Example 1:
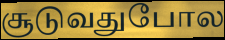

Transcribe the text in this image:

சூடுவதுபோல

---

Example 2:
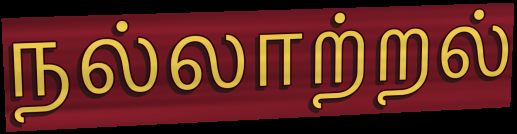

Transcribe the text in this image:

நல்லாற்றல்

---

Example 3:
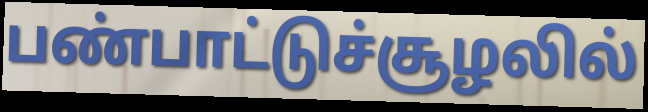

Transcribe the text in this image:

பண்பாட்டுச்சூழலில்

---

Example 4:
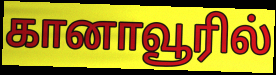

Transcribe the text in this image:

கானாவூரில்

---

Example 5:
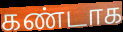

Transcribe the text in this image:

கண்டாக